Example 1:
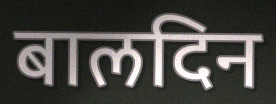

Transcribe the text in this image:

बालदिन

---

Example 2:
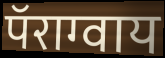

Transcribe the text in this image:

पॅराग्वाय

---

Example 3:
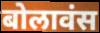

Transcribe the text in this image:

बोलावंस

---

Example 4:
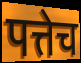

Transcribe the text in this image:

पत्तेच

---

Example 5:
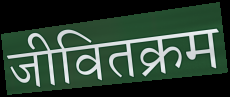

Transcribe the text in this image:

जीवितक्रम